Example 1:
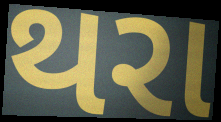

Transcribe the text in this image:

થરા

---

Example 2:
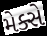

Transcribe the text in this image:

મેક્સે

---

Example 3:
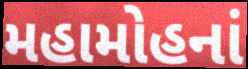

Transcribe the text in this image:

મહામોહનાં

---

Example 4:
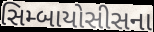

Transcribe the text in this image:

સિમ્બાયોસીસના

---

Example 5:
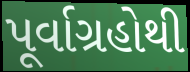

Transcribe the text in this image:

પૂર્વાગ્રહોથી